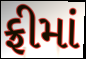
ફ્રીમાં